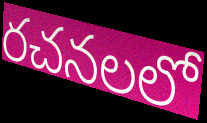
రచనలలో